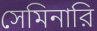
সেমিনারি